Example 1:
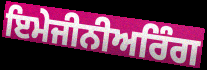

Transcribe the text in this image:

ਇਮੇਜੀਨੀਅਰਿੰਗ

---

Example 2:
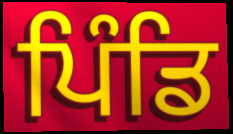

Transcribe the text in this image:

ਪਿੰਡਿ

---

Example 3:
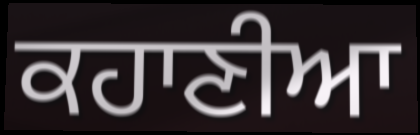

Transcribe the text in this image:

ਕਹਾਣੀਆ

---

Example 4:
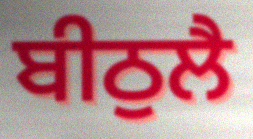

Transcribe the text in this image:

ਬੀਠੁਲੈ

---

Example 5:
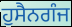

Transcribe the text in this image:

ਹੁਸੈਨਗੰਜ